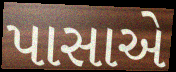
પાસાએ